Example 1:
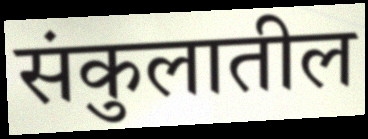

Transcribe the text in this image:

संकुलातील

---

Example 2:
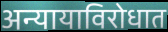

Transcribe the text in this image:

अन्यायाविरोधात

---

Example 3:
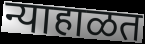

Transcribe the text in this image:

न्याहाळत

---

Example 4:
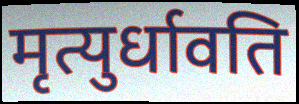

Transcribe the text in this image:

मृत्युर्धावति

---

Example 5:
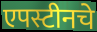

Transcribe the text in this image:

एपस्टीनचे